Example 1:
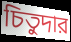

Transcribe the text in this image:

চিতুদার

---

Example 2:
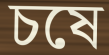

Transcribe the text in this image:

চষে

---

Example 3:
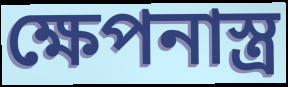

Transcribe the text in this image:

ক্ষেপনাস্ত্র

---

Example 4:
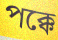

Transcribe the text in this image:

পক্কে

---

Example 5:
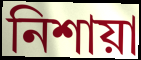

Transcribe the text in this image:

নিশায়া